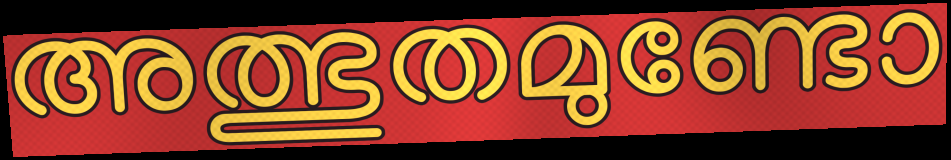
അത്ഭുതമുണ്ടോ